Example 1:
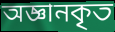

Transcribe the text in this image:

অজ্ঞানকৃত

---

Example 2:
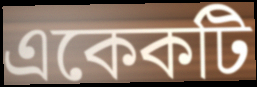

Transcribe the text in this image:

একেকটি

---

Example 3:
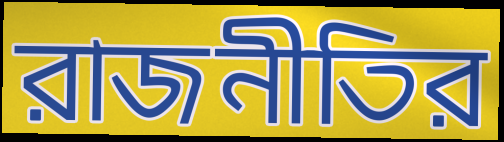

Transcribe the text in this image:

রাজনীতির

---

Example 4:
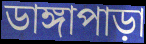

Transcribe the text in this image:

ডাঙ্গাপাড়া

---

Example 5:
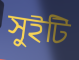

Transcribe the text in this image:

সুইটি